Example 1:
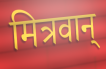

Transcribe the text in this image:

मित्रवान्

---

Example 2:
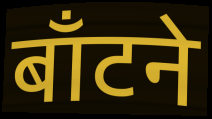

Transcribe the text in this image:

बाँटने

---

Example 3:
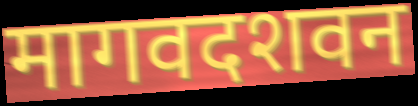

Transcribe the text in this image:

मागवदशवन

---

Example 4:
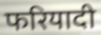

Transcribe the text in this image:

फरियादी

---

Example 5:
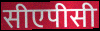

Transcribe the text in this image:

सीएपीसी